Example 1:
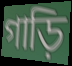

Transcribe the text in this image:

গাড়ি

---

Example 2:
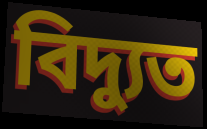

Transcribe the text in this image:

বিদ্যুত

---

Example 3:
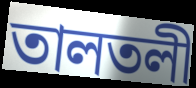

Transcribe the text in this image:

তালতলী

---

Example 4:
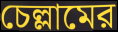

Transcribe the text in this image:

চেল্লামের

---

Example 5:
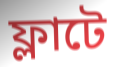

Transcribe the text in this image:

ফ্লাটে